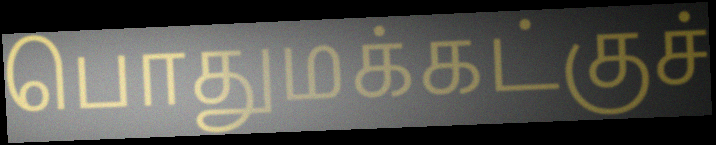
பொதுமக்கட்குச்